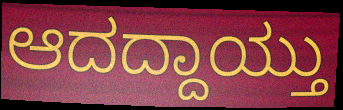
ಆದದ್ದಾಯ್ತು